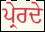
ਪ੍ਰੇਰਦੇ